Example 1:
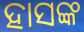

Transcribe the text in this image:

ହାସଙ୍କ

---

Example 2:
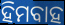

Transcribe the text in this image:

ହିମବାହ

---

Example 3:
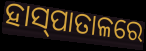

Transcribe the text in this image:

ହାସ୍‌ପାତାଳରେ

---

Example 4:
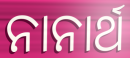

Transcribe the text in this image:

ନାନାର୍ଥ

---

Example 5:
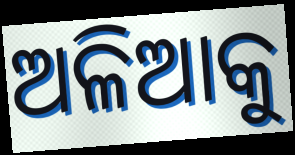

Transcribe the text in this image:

ଅଳିଆକୁ